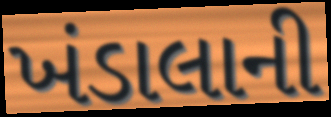
ખંડાલાની